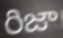
రిజా